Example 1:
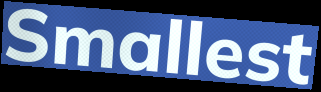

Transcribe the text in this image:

Smallest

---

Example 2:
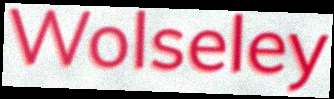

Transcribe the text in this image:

Wolseley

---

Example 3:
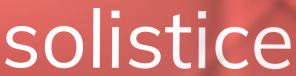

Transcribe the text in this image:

solistice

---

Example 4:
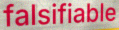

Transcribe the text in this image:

falsifiable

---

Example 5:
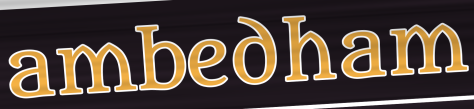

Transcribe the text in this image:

ambedham